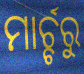
ମାର୍ଚ୍ଚରୁ